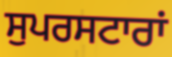
ਸੁਪਰਸਟਾਰਾਂ